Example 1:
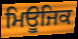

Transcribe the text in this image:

ਮਿਊਜਿਕ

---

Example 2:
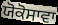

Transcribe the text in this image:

ਯੋਕੋਸਾਵਾ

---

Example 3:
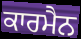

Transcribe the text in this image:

ਕਾਰਮੈਨ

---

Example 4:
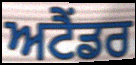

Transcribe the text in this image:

ਅਟੈਂਡਰ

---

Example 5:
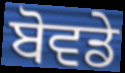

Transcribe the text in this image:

ਬੋਵਡੇ